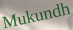
Mukundh